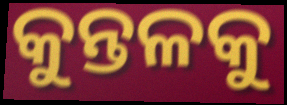
କୁନ୍ତଳକୁ